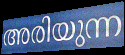
അരിയുന്ന